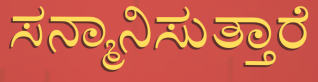
ಸನ್ಮಾನಿಸುತ್ತಾರೆ